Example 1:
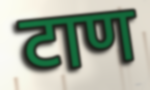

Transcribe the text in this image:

टाण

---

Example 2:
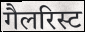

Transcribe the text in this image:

गैलरिस्ट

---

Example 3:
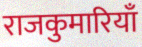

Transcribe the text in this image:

राजकुमारियाँ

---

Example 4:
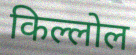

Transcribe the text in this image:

किल्लोल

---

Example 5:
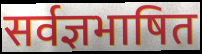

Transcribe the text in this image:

सर्वज्ञभाषित